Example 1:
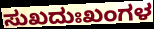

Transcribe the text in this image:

ಸುಖದುಃಖಂಗಳ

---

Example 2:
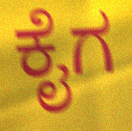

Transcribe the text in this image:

ಕೈಗ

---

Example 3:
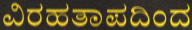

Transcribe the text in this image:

ವಿರಹತಾಪದಿಂದ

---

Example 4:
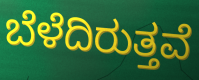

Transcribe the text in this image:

ಬೆಳೆದಿರುತ್ತವೆ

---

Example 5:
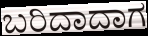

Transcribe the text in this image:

ಬರಿದಾದಾಗ